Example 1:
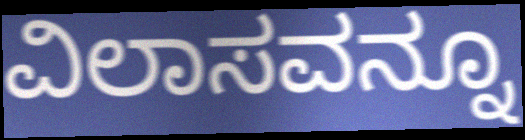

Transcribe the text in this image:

ವಿಲಾಸವನ್ನೂ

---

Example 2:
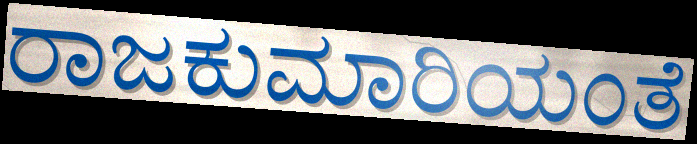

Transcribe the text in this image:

ರಾಜಕುಮಾರಿಯಂತೆ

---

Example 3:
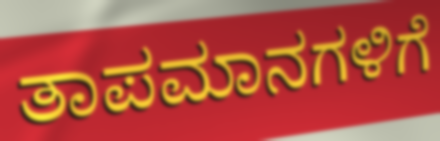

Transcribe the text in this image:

ತಾಪಮಾನಗಳಿಗೆ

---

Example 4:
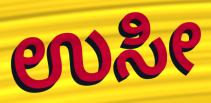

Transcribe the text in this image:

ಉಸೀ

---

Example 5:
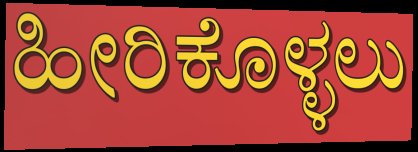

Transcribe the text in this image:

ಹೀರಿಕೊಳ್ಳಲು